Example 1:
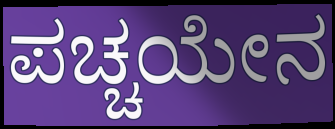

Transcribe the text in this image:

ಪಚ್ಚಯೇನ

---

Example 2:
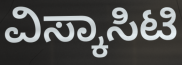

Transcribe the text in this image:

ವಿಸ್ಕಾಸಿಟಿ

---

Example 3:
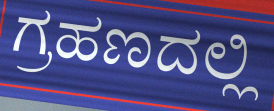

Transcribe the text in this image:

ಗ್ರಹಣದಲ್ಲಿ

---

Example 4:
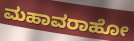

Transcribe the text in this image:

ಮಹಾವರಾಹೋ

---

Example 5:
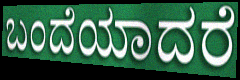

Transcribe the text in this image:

ಬಂದೆಯಾದರೆ